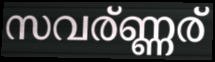
സവര്ണ്ണര്